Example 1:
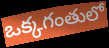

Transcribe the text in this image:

ఒక్కగంతులో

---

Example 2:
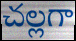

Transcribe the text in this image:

చల్లగా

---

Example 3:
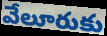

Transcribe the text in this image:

వేలూరుకు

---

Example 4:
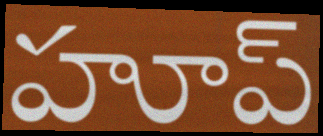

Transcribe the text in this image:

హూప్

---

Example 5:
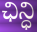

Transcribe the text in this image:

ఛిన్ధి